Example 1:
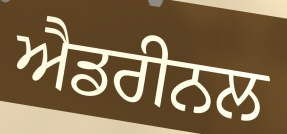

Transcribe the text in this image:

ਐਡਰੀਨਲ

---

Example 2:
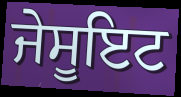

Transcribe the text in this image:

ਜੇਸੂਇਟ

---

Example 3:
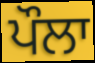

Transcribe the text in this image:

ਪੌਲਾ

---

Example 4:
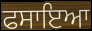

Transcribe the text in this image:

ਫਸਾਇਆ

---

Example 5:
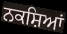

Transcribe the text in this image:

ਨਕਸ਼ਿਆਂ